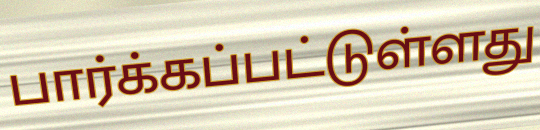
பார்க்கப்பட்டுள்ளது